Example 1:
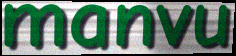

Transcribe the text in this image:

manvu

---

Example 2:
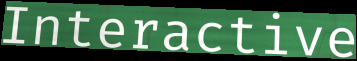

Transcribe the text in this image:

Interactive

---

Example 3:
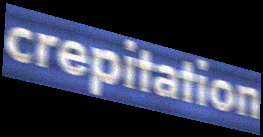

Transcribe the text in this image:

crepitation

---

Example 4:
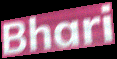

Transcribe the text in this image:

Bhari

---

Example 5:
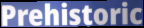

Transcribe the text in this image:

Prehistoric